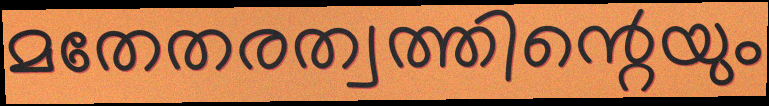
മതേതരത്വത്തിന്റെയും